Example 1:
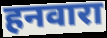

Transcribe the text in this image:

हनवारा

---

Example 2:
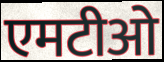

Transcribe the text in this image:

एमटीओ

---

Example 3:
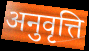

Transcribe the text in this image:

अनुवृत्ति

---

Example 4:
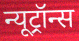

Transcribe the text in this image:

न्यूट्रॉन्स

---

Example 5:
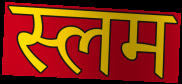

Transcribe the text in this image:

स्लम